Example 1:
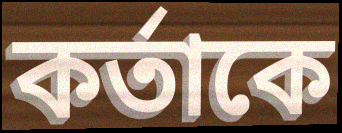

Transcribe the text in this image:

কর্তাকে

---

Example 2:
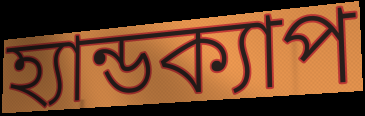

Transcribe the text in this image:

হ্যান্ডক্যাপ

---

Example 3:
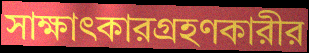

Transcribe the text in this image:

সাক্ষাৎকারগ্রহণকারীর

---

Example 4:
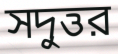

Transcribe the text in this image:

সদুত্তর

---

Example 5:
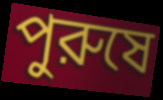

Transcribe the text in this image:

পুরুষে